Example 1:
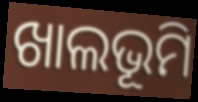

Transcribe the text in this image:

ଖାଲଭୂମି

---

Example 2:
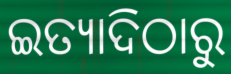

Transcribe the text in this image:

ଇତ୍ୟାଦିଠାରୁ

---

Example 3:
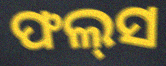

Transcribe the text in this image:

ଫଲ୍‌ସ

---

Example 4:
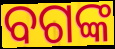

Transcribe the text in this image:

ବଗଙ୍କ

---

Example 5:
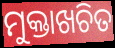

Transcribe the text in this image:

ମୁକ୍ତାଖଚିତ